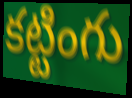
కట్టింగు